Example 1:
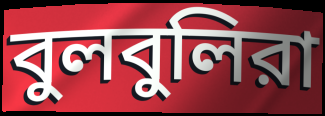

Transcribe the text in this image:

বুলবুলিরা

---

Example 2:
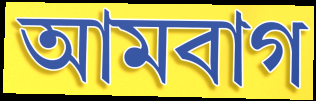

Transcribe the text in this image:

আমবাগ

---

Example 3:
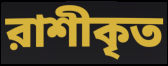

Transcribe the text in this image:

রাশীকৃত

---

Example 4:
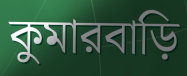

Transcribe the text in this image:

কুমারবাড়ি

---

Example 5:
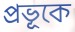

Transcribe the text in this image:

প্রভূকে